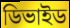
ডিভাইড